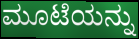
ಮೂಟೆಯನ್ನು